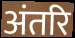
अंतरि